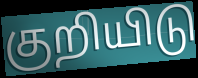
குறியிடு